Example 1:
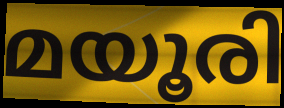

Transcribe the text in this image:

മയൂരി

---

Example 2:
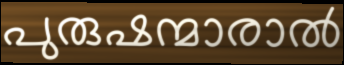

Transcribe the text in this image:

പുരുഷന്മാരാൽ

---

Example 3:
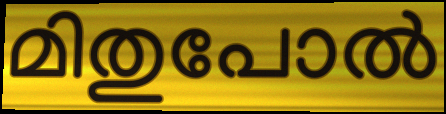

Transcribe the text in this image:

മിതുപോൽ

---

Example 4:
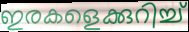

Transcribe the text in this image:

ഇരകളെക്കുറിച്ച്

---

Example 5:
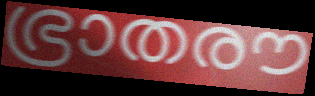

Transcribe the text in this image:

ഭ്രാതരൗ